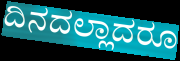
ದಿನದಲ್ಲಾದರೂ